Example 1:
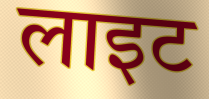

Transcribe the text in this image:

लाइट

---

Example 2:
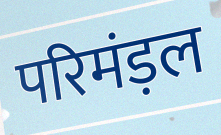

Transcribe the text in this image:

परिमंड़ल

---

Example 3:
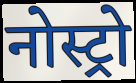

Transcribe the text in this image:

नोस्ट्रो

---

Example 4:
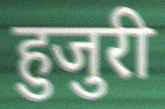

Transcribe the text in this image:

हुजुरी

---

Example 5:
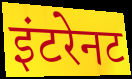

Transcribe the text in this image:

इंटरेनट